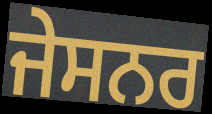
ਜੇਸਨਰ